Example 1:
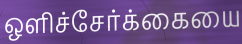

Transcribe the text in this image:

ஒளிச்சேர்க்கையை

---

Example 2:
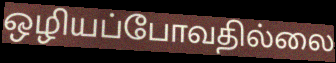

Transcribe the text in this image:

ஒழியப்போவதில்லை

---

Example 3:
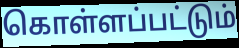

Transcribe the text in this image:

கொள்ளப்பட்டும்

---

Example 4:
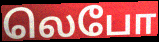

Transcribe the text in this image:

லெபோ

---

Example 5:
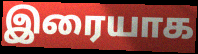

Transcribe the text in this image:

இரையாக